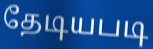
தேடியபடி